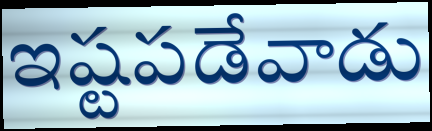
ఇష్టపడేవాడు